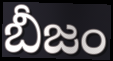
బీజం